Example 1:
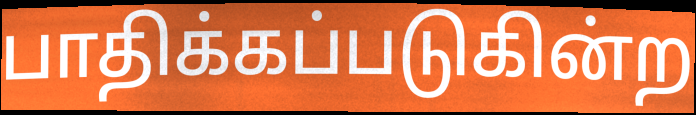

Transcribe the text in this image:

பாதிக்கப்படுகின்ற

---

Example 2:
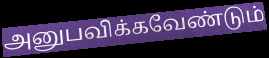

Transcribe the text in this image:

அனுபவிக்கவேண்டும்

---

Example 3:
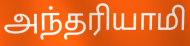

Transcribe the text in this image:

அந்தரியாமி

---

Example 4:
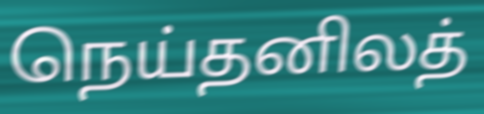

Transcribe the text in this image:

நெய்தனிலத்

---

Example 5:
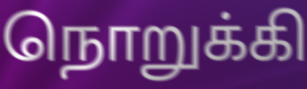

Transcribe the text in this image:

நொறுக்கி